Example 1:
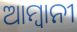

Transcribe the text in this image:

ଆମ୍ବାନୀ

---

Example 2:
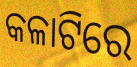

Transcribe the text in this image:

କଳାଟିରେ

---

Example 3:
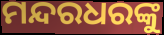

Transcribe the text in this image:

ମନ୍ଦରଧରଙ୍କୁ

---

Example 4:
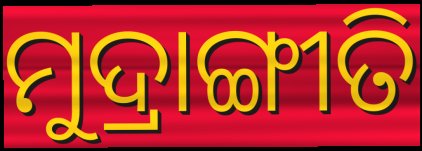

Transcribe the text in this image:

ମୁଦ୍ରାଙ୍ଗୀତି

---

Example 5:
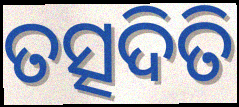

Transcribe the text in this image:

ତତ୍ସଦିତି